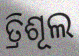
ତ୍ରିଶୂଲ